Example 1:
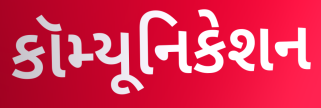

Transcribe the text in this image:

કૉમ્યૂનિકેશન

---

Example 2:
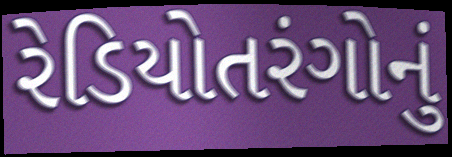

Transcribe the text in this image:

રેડિયોતરંગોનું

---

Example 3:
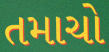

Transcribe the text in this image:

તમાચો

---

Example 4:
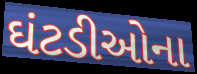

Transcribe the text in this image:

ઘંટડીઓના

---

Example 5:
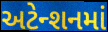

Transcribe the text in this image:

અટેન્શનમાં